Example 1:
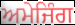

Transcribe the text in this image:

ਅਮੇਜਿੰਗ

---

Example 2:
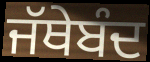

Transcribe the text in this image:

ਜੱਥੇਬੰਦ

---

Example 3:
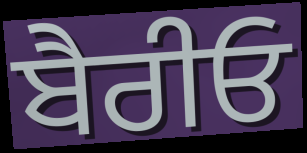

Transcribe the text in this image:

ਬੈਰੀਓ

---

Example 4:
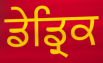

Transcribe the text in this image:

ਡੇਡ੍ਰਿਕ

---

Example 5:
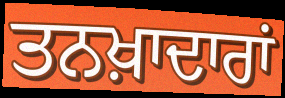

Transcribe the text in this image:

ਤਨਖ਼ਾਦਾਰਾਂ